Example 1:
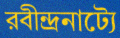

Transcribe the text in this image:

রবীন্দ্রনাট্যে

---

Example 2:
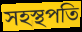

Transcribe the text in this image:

সহস্থপতি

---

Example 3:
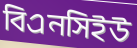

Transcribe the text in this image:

বিএনসিইউ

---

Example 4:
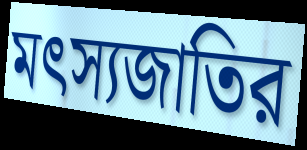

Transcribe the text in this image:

মৎস্যজাতির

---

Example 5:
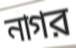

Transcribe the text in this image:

নাগর